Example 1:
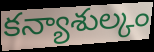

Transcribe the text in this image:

కన్యాశుల్కం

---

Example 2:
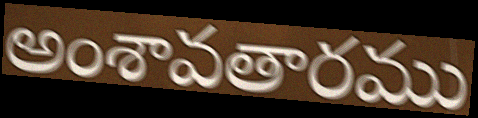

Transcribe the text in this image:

అంశావతారము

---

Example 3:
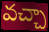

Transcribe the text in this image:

వచ్చా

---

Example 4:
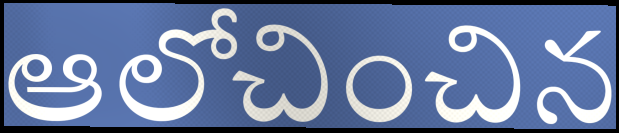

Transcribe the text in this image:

ఆలోచించిన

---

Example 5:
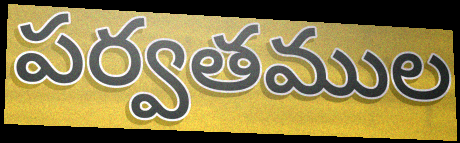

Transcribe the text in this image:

పర్వతముల